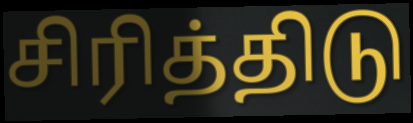
சிரித்திடு